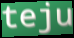
teju